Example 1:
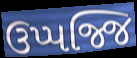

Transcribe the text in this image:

ઉપ્પજ્જિ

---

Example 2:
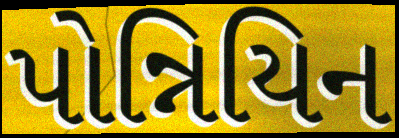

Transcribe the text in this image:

પોન્નિયિન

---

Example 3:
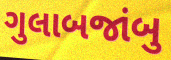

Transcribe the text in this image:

ગુલાબજાંબુ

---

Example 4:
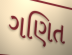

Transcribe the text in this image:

ગણિત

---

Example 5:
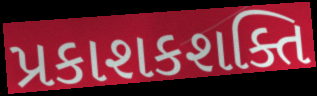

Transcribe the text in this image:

પ્રકાશકશક્તિ